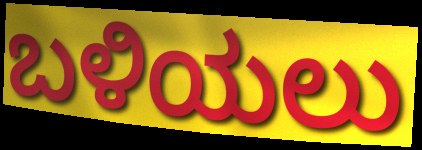
ಬಳಿಯಲು